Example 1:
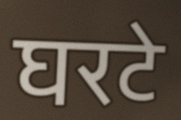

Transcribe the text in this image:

घरटे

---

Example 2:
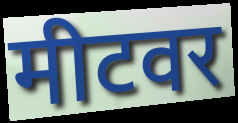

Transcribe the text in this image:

मीटवर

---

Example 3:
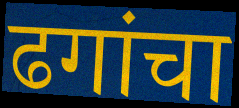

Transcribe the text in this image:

ढगांचा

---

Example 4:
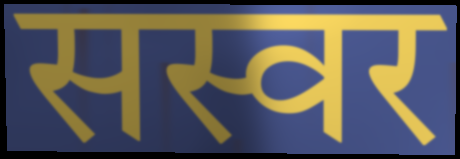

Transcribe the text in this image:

सस्वर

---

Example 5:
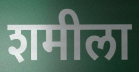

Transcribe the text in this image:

शमीला